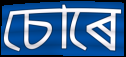
চোৰে